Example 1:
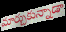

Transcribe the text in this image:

మార్చుకున్నాడా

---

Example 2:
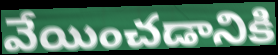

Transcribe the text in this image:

వేయించడానికి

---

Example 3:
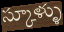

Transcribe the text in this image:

స్కూళ్ళు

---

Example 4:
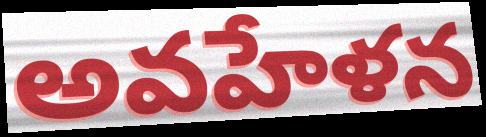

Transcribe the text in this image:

అవహేళన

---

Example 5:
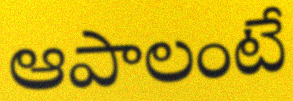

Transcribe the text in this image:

ఆపాలంటే